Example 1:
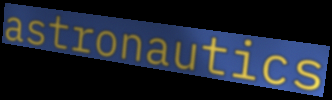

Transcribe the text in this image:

astronautics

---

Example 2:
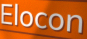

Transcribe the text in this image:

Elocon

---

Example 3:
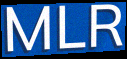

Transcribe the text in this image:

MLR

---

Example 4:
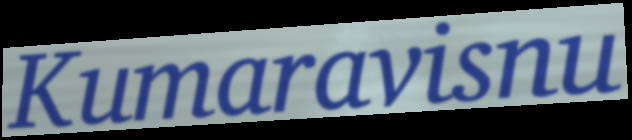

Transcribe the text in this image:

Kumaravisnu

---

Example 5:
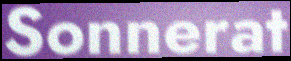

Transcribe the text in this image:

Sonnerat